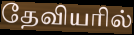
தேவியரில்